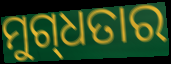
ମୁଗ୍‍ଧତାର